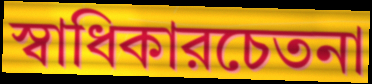
স্বাধিকারচেতনা